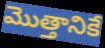
మొత్తానికే